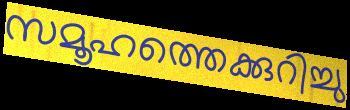
സമൂഹത്തെക്കുറിച്ചു